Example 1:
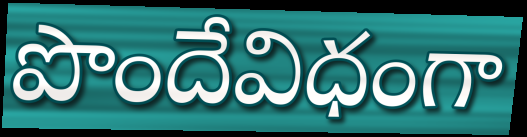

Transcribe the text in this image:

పొందేవిధంగా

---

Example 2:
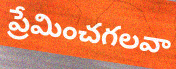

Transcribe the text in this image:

ప్రేమించగలవా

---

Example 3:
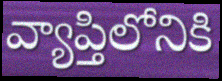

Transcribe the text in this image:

వ్యాప్తిలోనికి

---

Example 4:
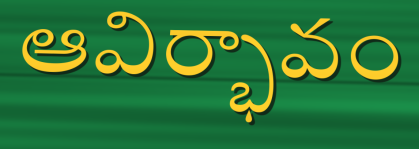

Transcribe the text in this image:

ఆవిర్భావం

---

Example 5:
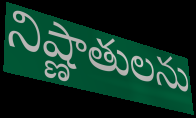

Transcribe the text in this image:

నిష్ణాతులను